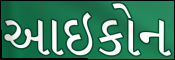
આઇકોન